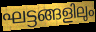
ഘട്ടങ്ങളിലും